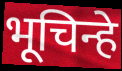
भूचिन्हे